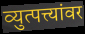
व्युत्पत्त्यांवर